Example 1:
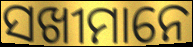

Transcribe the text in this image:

ସଖୀମାନେ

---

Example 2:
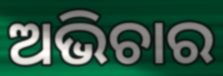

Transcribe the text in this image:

ଅଭିଚାର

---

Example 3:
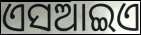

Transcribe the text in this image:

ଏସଆଇଏ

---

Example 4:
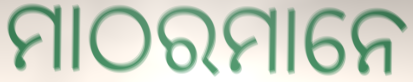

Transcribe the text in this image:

ମାଠରମାନେ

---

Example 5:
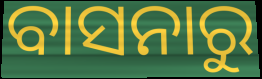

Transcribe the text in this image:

ବାସନାରୁ